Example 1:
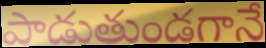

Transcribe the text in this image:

పాడుతుండగానే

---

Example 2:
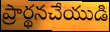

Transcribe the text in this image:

ప్రార్థనచేయుడి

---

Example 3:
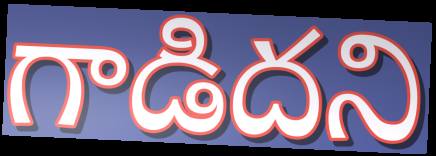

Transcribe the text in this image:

గాడిదని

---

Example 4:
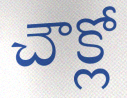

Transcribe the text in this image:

చౌక్లో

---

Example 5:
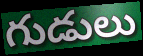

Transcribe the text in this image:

గుడులు